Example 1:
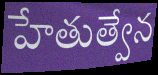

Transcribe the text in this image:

హేతుత్వేన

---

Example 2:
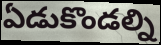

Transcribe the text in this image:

ఏడుకొండల్ని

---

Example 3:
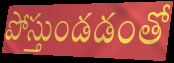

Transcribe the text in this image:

పోస్తుండడంతో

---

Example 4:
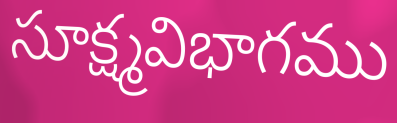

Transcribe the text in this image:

సూక్ష్మవిభాగము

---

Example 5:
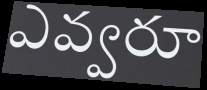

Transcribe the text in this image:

ఎవ్వరూ